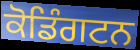
ਕੋਡਿੰਗਟਨ